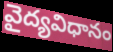
వైద్యవిధానం